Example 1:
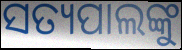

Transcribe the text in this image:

ସତ୍ୟପାଲଙ୍କୁ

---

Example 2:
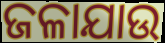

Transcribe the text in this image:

ଜଳାଯାଉ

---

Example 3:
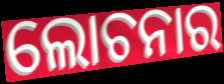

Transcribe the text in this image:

ଲୋଚନାର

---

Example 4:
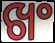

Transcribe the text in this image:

ଖଂ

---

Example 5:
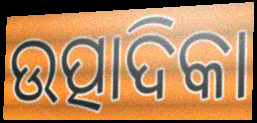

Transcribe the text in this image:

ଉତ୍ପାଦିକା